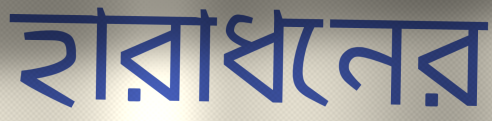
হারাধনের